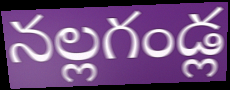
నల్లగండ్ల